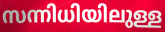
സന്നിധിയിലുള്ള